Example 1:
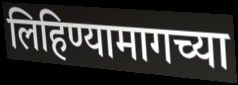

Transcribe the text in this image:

लिहिण्यामागच्या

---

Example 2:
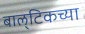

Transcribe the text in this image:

बाल्टिकच्या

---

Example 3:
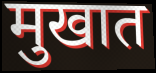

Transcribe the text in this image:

मुखात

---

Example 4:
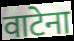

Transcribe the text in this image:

वाटेना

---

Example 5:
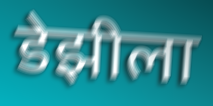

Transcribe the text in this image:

डेझीला